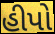
હીપો